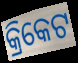
କ୍ରିକେଟ